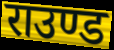
राउण्ड